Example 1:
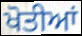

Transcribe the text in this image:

ਖੋਤੀਆਂ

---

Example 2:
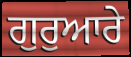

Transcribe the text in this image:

ਗੁਰੁਆਰੇ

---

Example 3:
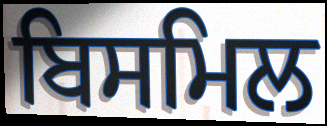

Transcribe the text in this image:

ਬਿਸਮਿਲ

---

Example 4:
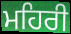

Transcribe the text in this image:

ਮਹਿਰੀ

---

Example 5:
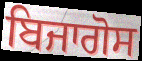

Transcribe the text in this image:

ਬਿਜਾਗੋਸ